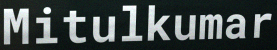
Mitulkumar